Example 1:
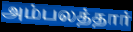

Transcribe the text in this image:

அம்பலத்தார்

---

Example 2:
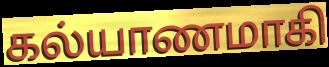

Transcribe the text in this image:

கல்யாணமாகி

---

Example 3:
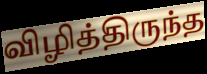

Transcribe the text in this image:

விழித்திருந்த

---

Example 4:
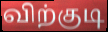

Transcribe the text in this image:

விற்குடி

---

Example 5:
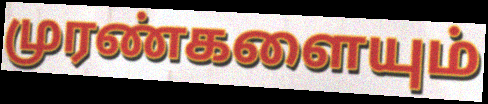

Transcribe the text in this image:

முரண்களையும்